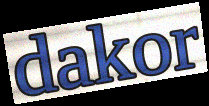
dakor